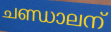
ചണ്ഡാലന്